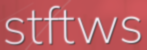
stftws